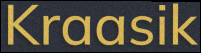
Kraasik